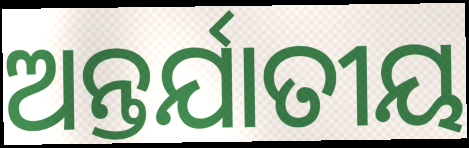
ଅନ୍ତର୍ଯାତୀୟ